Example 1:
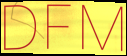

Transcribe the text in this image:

DFM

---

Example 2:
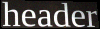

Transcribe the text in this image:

header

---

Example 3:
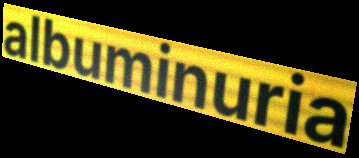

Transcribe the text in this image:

albuminuria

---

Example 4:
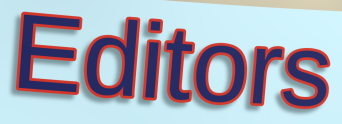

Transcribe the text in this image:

Editors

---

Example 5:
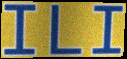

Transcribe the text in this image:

ILI